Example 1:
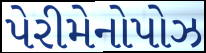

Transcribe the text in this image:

પેરીમેનોપોઝ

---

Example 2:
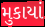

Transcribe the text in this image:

મુકાયાં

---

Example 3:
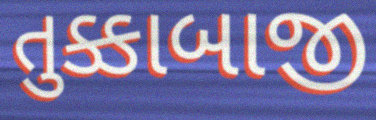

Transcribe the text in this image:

તુક્કાબાજી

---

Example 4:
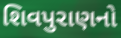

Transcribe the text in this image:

શિવપુરાણનો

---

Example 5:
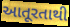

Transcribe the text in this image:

આતૂરતાથી